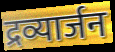
द्रव्यार्जन